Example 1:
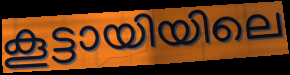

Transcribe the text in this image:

കൂട്ടായിയിലെ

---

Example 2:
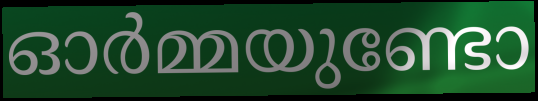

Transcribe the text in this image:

ഓർമ്മയുണ്ടോ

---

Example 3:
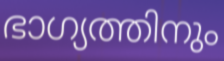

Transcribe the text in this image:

ഭാഗ്യത്തിനും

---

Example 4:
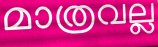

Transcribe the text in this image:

മാത്രവല്ല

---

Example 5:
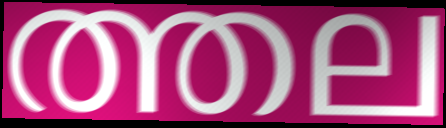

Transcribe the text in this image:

ത്തല